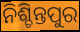
ନିଶ୍ଚିନ୍ତପୁର